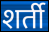
शर्ती